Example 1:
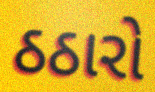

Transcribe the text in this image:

ઠઠારો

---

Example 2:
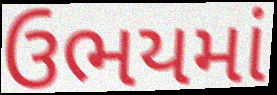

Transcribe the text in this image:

ઉભયમાં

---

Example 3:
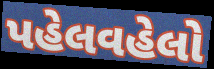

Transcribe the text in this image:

પહેલવહેલો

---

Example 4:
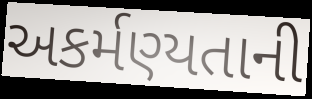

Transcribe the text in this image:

અકર્મણ્યતાની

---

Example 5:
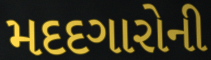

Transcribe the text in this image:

મદદગારોની